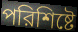
পরিশিষ্টে